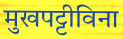
मुखपट्टीविना